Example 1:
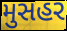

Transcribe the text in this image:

મુસહર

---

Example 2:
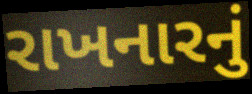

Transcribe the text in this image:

રાખનારનું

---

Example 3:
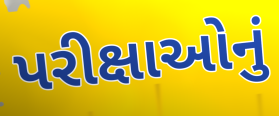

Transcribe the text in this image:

પરીક્ષાઓનું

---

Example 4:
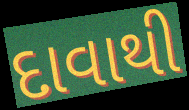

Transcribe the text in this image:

દાવાથી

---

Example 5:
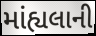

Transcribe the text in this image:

માંહ્યલાની